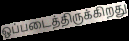
ஒப்படைத்திருக்கிறது